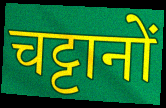
चट्टानों